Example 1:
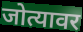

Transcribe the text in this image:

जोत्यावर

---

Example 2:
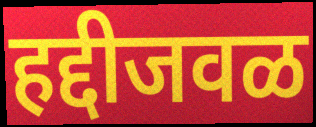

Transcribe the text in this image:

हद्दीजवळ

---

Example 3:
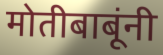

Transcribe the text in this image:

मोतीबाबूंनी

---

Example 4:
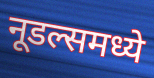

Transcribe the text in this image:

नूडल्समध्ये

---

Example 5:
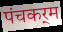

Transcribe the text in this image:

पंचकर्म